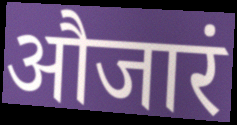
औजारं